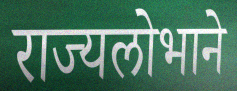
राज्यलोभाने